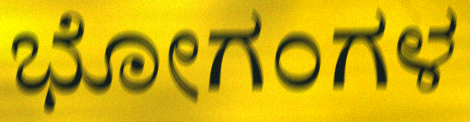
ಭೋಗಂಗಳ